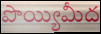
పొయ్యిమీద